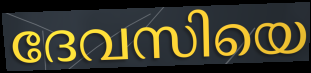
ദേവസിയെ